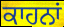
ਕਾਹਨਾਂ